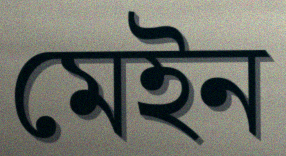
মেইন